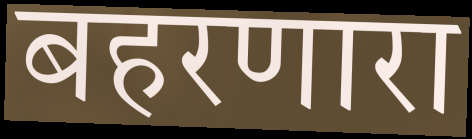
बहरणारा